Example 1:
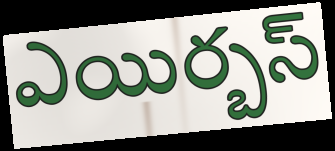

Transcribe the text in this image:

ఎయిర్బస్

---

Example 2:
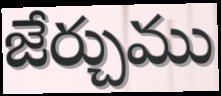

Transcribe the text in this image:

జేర్చుము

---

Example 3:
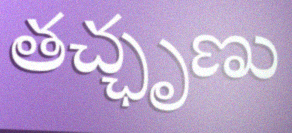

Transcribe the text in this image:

తచ్ఛృణు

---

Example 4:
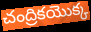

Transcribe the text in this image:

చంద్రికయొక్క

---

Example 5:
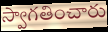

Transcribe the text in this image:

స్వాగతించారు